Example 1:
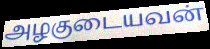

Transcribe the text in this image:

அழகுடையவன்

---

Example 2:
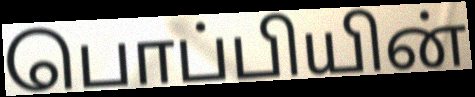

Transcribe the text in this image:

பொப்பியின்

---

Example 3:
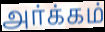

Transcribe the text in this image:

அர்க்கம்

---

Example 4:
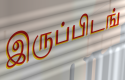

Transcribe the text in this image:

இருப்பிடங்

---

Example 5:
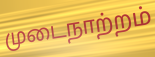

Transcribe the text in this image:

முடைநாற்றம்